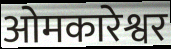
ओमकारेश्वर